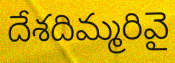
దేశదిమ్మరివై